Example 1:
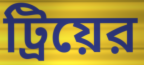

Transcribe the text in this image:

ট্রিয়ের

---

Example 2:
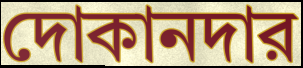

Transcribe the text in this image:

দোকানদার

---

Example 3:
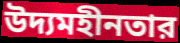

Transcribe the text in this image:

উদ্যমহীনতার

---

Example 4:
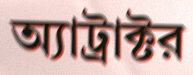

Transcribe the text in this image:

অ্যাট্রাক্টর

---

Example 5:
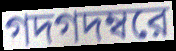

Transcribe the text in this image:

গদগদম্বরে